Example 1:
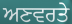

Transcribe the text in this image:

ਅਣਵਰਤੇ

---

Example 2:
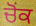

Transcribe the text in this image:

ਚੋਂਕ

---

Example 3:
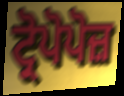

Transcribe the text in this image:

ਟ੍ਰੋਪੋਪੋਜ਼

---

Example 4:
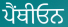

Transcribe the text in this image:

ਪੈਂਥੀਓਨ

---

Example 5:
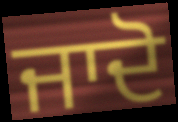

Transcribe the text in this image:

ਜਾਦੋ